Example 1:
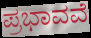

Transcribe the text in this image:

ಪ್ರಭಾವವೆ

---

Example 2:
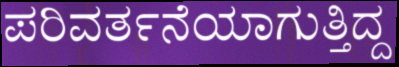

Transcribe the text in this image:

ಪರಿವರ್ತನೆಯಾಗುತ್ತಿದ್ದ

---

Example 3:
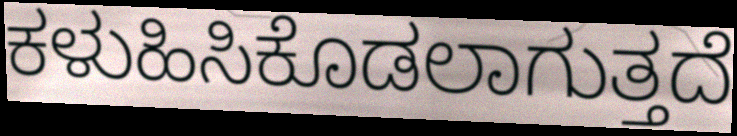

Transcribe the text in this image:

ಕಳುಹಿಸಿಕೊಡಲಾಗುತ್ತದೆ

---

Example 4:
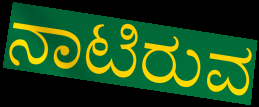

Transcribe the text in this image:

ನಾಟಿರುವ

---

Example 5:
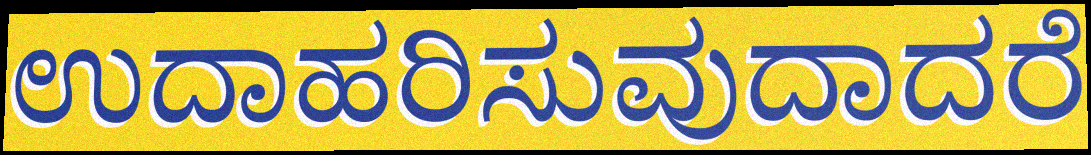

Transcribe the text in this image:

ಉದಾಹರಿಸುವುದಾದರೆ